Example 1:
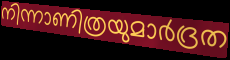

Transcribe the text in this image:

നിന്നാണിത്രയുമാർദ്രത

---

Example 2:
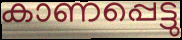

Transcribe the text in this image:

കാണപ്പെട്ടു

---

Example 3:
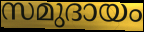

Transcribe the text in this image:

സമുദായം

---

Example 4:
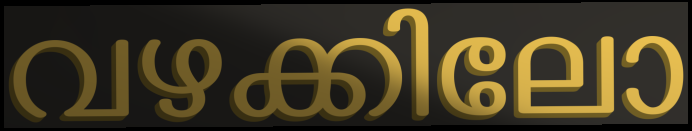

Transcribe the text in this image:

വഴക്കിലോ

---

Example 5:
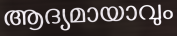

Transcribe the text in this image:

ആദ്യമായാവും